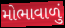
મોભાવાળું